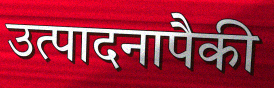
उत्पादनापैकी